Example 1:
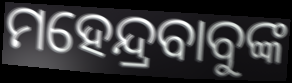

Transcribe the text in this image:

ମହେନ୍ଦ୍ରବାବୁଙ୍କ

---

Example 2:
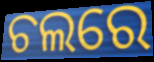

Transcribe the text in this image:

ଚଲରେ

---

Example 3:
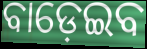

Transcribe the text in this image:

ବାଡ଼େଇବ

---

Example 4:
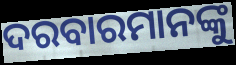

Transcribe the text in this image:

ଦରବାରମାନଙ୍କୁ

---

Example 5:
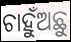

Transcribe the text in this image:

ଚାହୁଁଅଛୁ